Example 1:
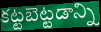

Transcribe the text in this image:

కట్టబెట్టడాన్ని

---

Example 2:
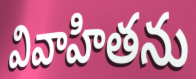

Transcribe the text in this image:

వివాహితను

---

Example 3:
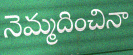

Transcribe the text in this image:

నెమ్మదించినా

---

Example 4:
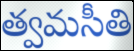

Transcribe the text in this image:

త్వమసీతి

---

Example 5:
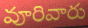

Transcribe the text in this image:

వూరివారు